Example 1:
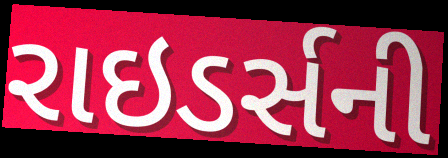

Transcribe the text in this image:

રાઇડર્સની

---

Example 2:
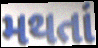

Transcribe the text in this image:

મથતાં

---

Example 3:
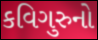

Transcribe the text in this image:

કવિગુરુનો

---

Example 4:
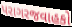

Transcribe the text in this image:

પરાગરજવાહકો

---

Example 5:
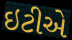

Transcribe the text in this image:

ઇટીએ